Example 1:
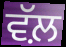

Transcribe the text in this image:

ਵੱਲ਼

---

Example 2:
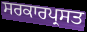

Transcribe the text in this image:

ਸਰਕਾਰਪ੍ਰਸਤ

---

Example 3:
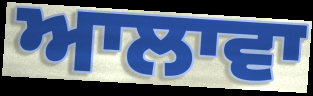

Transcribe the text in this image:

ਆਲਾਵਾ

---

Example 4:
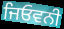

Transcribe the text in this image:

ਜਿਓਵਨੀ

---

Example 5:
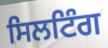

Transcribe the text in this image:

ਸਿਲਟਿੰਗ